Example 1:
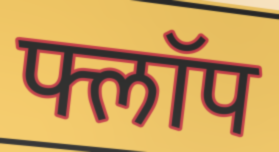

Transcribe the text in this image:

फ्लॉप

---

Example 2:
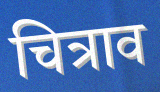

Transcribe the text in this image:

चित्राव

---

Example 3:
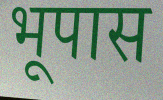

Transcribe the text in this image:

भूपास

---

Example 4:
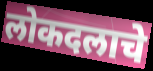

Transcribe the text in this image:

लोकदलाचे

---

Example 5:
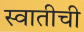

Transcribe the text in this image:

स्वातीची